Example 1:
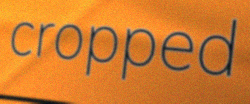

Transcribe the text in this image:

cropped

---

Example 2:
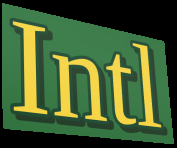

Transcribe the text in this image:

Intl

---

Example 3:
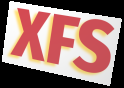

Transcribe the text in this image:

XFS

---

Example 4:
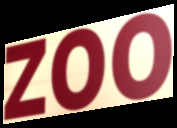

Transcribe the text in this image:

zoo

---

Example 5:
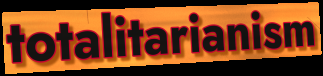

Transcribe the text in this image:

totalitarianism